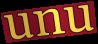
unu